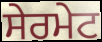
ਸੇਰਮੇਟ